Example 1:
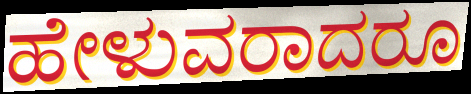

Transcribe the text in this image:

ಹೇಳುವರಾದರೂ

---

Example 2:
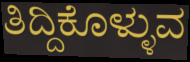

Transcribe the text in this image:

ತಿದ್ದಿಕೊಳ್ಳುವ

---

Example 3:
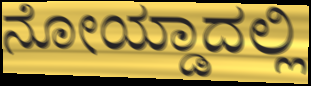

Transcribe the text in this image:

ನೋಯ್ಡಾದಲ್ಲಿ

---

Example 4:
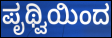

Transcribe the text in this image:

ಪೃಥ್ವಿಯಿಂದ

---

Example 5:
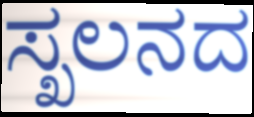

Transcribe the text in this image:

ಸ್ಖಲನದ